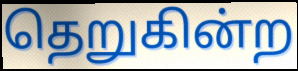
தெறுகின்ற